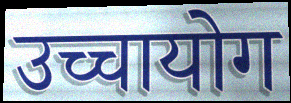
उच्चायोग